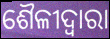
ଶୈଳୀଦ୍ୱାରା